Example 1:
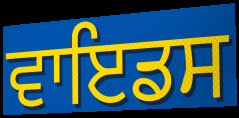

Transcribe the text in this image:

ਵਾਇਡਸ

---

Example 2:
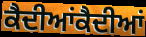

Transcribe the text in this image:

ਕੈਦੀਆਂਕੈਦੀਆਂ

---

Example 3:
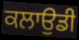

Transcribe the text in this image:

ਕਲਾਉਡੀ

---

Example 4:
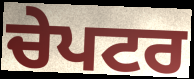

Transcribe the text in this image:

ਚੇਪਟਰ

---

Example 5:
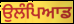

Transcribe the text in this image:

ਉਲੰਪਿਆਡ